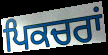
ਪਿਕਚਰਾਂ